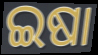
ଇଷା